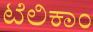
ಟೆಲಿಕಾಂ